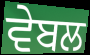
ਵੇਬਲ